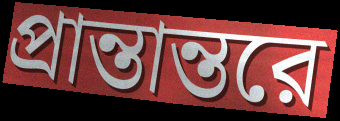
প্রান্তান্তরে